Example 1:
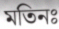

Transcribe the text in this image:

মতিনঃ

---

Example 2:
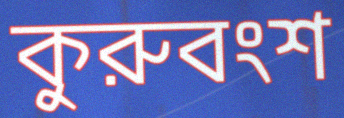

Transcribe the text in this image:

কুরুবংশ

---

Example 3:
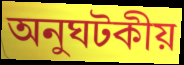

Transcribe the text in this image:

অনুঘটকীয়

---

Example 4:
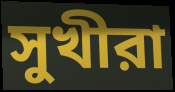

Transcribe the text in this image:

সুখীরা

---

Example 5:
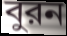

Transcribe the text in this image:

বুরন